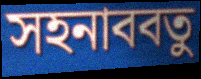
সহনাববতু